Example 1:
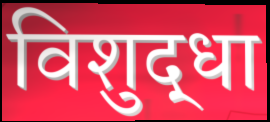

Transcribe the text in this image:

विशुद्धा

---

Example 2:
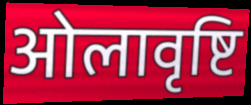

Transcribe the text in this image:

ओलावृष्टि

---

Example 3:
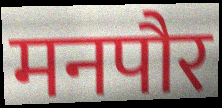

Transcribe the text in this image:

मनपौर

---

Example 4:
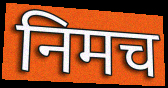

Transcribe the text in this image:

निमच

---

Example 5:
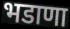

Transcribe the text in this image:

भडाणा